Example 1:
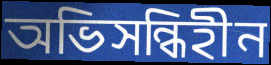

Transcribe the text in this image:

অভিসন্ধিহীন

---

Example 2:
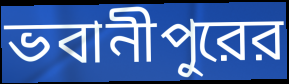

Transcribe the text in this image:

ভবানীপুরের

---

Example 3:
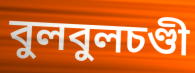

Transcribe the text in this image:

বুলবুলচণ্ডী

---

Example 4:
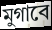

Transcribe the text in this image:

মুগাবে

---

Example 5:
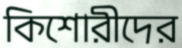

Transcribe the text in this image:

কিশোরীদের